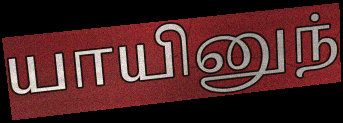
யாயினுந்